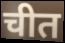
चीत